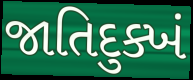
જાતિદુક્ખં